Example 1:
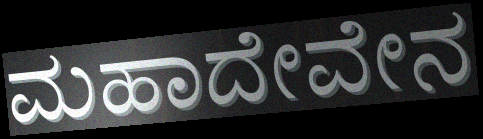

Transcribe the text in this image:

ಮಹಾದೇವೇನ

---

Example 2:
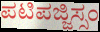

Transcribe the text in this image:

ಪಟಿಪಜ್ಜಿಸ್ಸಂ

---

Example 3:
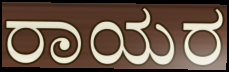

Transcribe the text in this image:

ರಾಯರ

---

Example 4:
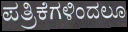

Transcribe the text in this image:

ಪತ್ರಿಕೆಗಳಿಂದಲೂ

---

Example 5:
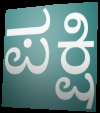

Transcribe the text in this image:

ಪಕ್ಷಿ